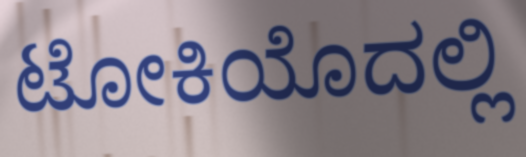
ಟೋಕಿಯೊದಲ್ಲಿ